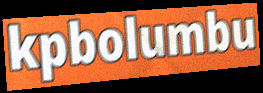
kpbolumbu